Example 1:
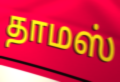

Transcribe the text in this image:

தாமஸ்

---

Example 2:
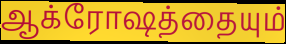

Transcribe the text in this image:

ஆக்ரோஷத்தையும்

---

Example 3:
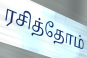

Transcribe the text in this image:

ரசித்தோம்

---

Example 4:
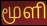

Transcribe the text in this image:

மூளி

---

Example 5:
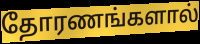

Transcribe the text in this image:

தோரணங்களால்